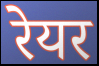
रेयर